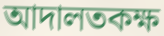
আদালতকক্ষ